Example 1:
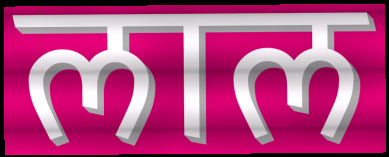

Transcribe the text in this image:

लाल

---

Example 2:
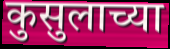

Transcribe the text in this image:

कुसुलाच्या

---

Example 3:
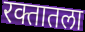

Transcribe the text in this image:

रक्तातला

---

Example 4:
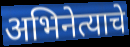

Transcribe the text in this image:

अभिनेत्याचे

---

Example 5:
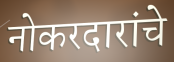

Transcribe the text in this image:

नोकरदारांचे